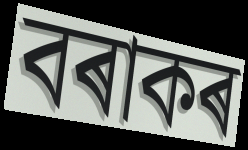
বৰাকৰ